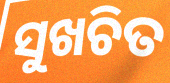
ସୁଖଚିତ